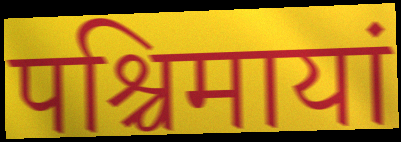
पश्चिमायां